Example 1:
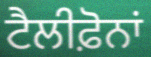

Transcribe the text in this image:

ਟੈਲੀਫ਼ੋਨਾਂ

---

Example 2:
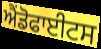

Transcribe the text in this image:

ਐਂਡੋਫਾਈਟਸ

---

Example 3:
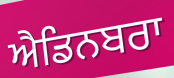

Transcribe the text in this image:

ਐਡਿਨਬਰਾ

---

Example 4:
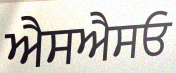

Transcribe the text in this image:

ਐਸਐਸਓ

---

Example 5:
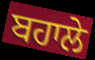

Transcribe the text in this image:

ਬਹਾਲੇ